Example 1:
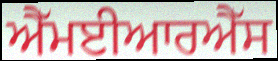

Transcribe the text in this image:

ਐੱਮਈਆਰਐੱਸ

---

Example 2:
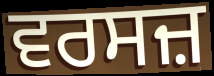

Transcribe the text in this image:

ਵਰਸਜ਼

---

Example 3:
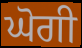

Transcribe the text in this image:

ਘੋਗੀ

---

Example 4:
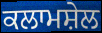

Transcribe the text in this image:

ਕਲਾਮਸ਼ੇਲ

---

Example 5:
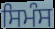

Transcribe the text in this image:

ਸਿਮੰਸ